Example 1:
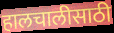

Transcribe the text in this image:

हालचालीसाठी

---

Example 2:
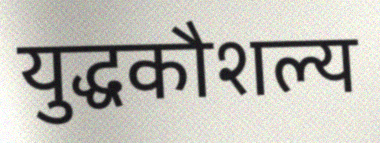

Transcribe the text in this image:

युद्धकौशल्य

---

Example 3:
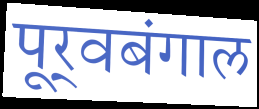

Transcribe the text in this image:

पूर्वबंगाल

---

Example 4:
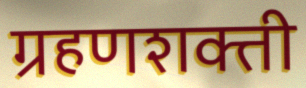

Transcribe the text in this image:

ग्रहणशक्ती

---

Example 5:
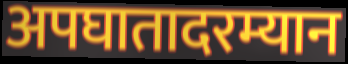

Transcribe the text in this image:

अपघातादरम्यान